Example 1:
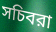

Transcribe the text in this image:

সচিবরা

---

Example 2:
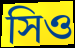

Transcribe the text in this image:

সিও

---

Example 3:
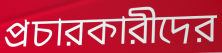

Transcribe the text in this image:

প্রচারকারীদের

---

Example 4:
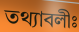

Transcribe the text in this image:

তথ্যাবলীঃ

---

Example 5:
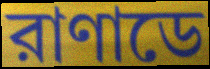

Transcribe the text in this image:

রাণাডে